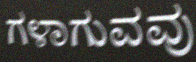
ಗಳಾಗುವವು